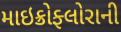
માઇક્રોફ્લોરાની